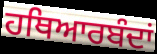
ਹਥਿਆਰਬੰਦਾਂ